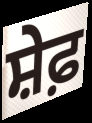
ਸ਼ੇਫ਼